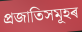
প্ৰজাতিসমূহৰ